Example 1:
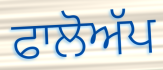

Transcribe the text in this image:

ਫਾਲੋਅੱਪ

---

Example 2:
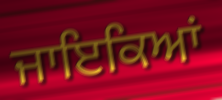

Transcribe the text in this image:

ਜਾਇਕਿਆਂ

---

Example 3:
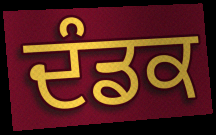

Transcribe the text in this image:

ਦੰਡਕ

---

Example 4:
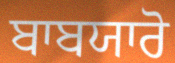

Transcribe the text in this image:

ਬਾਬਯਾਰੋ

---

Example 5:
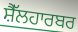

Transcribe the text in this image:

ਸ਼ੈੱਲਹਾਰਬਰ